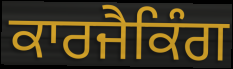
ਕਾਰਜੈਕਿੰਗ